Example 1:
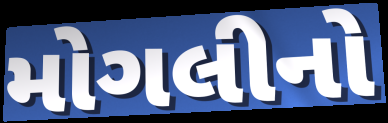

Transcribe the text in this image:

મોગલીનો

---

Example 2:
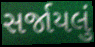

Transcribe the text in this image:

સર્જાયલું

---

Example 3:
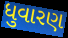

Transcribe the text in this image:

ધુવારણ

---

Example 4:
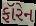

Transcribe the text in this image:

ફૉરેન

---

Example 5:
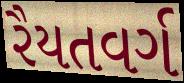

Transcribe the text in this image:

રૈયતવર્ગ